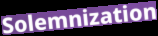
Solemnization